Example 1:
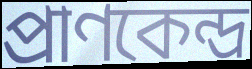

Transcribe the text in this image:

প্রাণকেন্দ্র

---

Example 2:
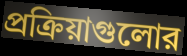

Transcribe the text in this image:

প্রক্রিয়াগুলোর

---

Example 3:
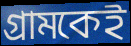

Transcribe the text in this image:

গ্রামকেই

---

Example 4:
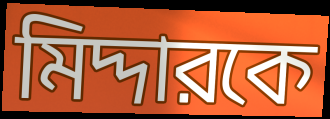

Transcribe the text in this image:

মিদ্দারকে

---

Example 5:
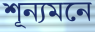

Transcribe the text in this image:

শূন্যমনে